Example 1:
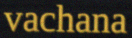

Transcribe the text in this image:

vachana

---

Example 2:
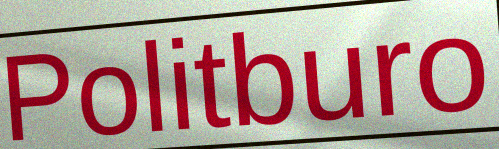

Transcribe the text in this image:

Politburo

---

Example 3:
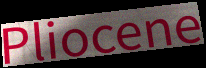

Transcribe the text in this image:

Pliocene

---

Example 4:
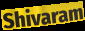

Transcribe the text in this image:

Shivaram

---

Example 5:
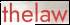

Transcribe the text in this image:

thelaw